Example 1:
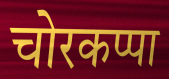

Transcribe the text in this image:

चोरकप्पा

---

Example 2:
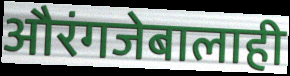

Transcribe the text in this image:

औरंगजेबालाही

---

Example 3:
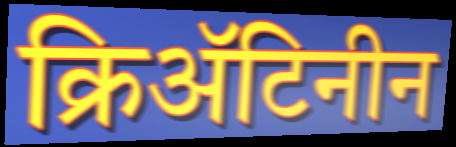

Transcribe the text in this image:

क्रिॲटिनीन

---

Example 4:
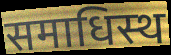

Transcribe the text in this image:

समाधिस्थ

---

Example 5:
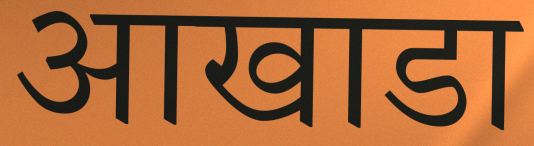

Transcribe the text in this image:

आखाडा